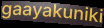
gaayakuniki